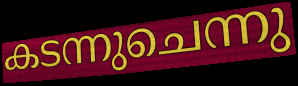
കടന്നുചെന്നു